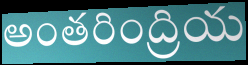
అంతరింద్రియ